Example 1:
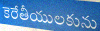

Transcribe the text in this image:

కెరేతీయులకును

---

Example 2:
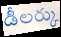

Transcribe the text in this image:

డీలర్కు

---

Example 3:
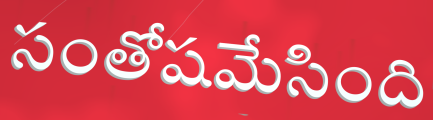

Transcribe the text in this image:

సంతోషమేసింది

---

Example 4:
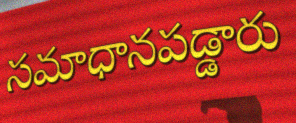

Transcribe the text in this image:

సమాధానపడ్డారు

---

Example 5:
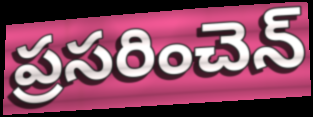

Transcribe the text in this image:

ప్రసరించెన్